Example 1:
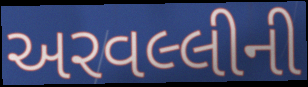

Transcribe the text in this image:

અરવલ્લીની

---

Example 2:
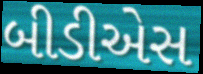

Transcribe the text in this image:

બીડીએસ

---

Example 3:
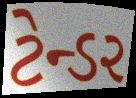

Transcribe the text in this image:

ટેન્ડર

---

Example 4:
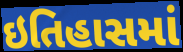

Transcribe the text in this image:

ઇતિહાસમાં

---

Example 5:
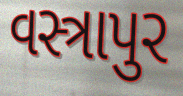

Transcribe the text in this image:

વસ્ત્રાપુર